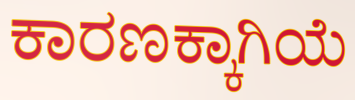
ಕಾರಣಕ್ಕಾಗಿಯೆ